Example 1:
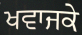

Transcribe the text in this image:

ਖਵਾਜਕੇ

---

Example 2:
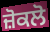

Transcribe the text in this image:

ਜ਼ੋਕਲੋ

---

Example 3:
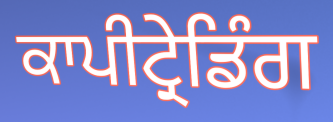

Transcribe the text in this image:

ਕਾਪੀਟ੍ਰੇਡਿੰਗ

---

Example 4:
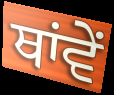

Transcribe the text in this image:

ਥਾਂਵੇਂ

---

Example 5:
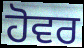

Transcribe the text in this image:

ਹੋਵਰ